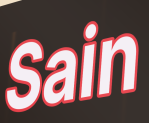
Sain